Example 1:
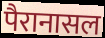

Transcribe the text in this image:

पैरानासल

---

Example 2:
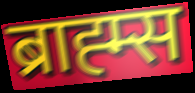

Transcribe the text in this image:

ब्राह्म्स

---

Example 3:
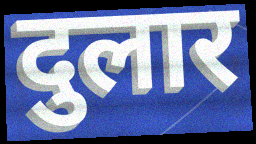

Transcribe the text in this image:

दुलार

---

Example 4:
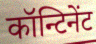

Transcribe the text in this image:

कॉन्टिनेंट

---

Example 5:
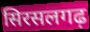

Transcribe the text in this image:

सिरसलगढ़